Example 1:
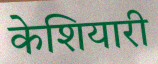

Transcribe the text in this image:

केशियारी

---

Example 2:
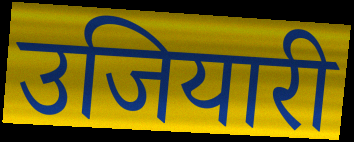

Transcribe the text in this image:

उजियारी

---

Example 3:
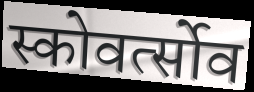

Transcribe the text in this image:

स्कोवर्त्सोव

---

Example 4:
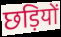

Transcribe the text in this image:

छड़ियों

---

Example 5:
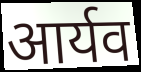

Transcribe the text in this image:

आर्यव